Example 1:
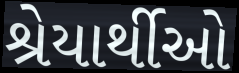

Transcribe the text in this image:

શ્રેયાર્થીઓ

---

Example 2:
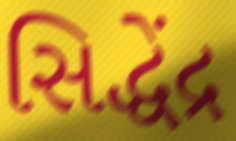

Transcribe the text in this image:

સિદ્ધેંદ્ર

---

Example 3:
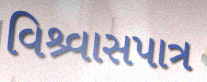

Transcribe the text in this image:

વિશ્ર્વાસપાત્ર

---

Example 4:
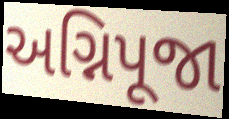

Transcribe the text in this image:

અગ્નિપૂજા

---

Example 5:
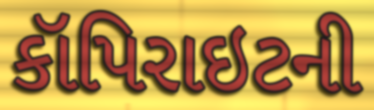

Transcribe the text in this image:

કૉપિરાઇટની